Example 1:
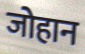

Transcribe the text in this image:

जोहान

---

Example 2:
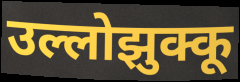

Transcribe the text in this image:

उल्लोझुक्कू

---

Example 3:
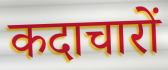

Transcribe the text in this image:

कदाचारों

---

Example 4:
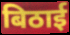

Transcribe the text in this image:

बिठाई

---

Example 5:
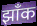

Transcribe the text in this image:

झाँक